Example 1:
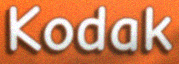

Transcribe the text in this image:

Kodak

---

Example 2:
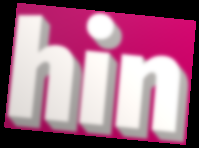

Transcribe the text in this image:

hin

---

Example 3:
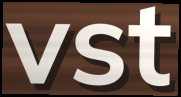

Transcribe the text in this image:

vst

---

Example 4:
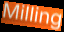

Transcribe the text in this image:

Milling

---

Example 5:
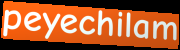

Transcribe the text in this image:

peyechilam